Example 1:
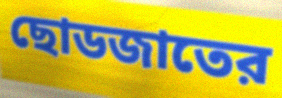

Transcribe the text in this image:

ছোডজাতের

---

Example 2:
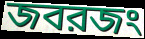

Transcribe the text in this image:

জবরজং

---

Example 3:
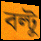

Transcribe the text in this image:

বল্টু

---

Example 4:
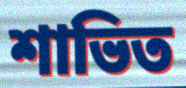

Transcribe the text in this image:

শাভিত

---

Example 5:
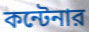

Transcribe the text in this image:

কন্টেনার